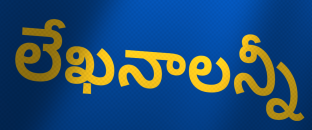
లేఖనాలన్నీ